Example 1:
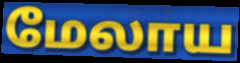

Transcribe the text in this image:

மேலாய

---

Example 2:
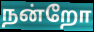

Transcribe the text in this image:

நன்றோ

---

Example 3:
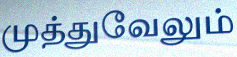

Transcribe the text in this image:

முத்துவேலும்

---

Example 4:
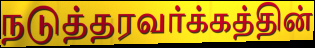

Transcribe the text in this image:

நடுத்தரவர்க்கத்தின்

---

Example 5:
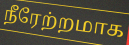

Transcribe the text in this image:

நீரேற்றமாக